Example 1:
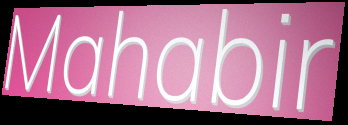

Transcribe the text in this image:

Mahabir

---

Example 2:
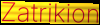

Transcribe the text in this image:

Zatrikion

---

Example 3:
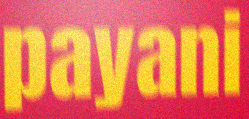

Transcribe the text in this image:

payani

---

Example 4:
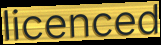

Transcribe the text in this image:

licenced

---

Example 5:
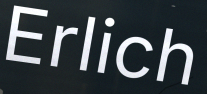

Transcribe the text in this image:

Erlich